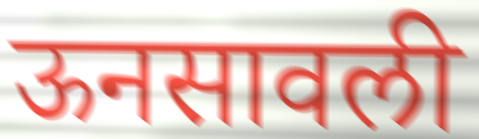
ऊनसावली